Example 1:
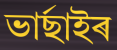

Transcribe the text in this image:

ভাৰ্ছাইৰ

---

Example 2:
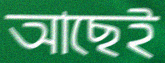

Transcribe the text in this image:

আছেই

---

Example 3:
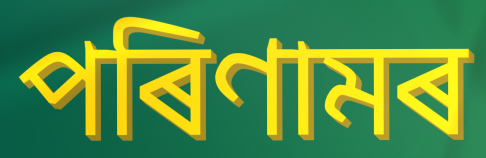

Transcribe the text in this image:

পৰিণামৰ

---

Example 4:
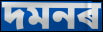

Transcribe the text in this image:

দমনৰ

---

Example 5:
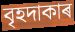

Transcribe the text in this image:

বৃহদাকাৰ